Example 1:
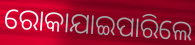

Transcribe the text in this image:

ରୋକାଯାଇପାରିଲେ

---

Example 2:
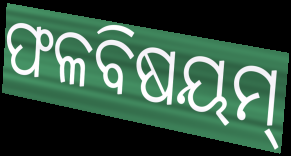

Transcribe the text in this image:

ଫଳବିଷୟମ୍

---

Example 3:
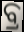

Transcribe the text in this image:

ବ୍ର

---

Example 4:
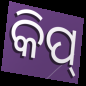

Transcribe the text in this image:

କିପ୍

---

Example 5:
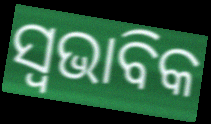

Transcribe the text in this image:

ସ୍ଵଭାବିକ